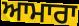
ਆਮਾਰਾ